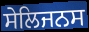
ਸੇਲਿਜਨਸ